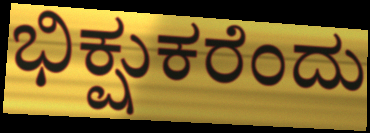
ಭಿಕ್ಷುಕರೆಂದು